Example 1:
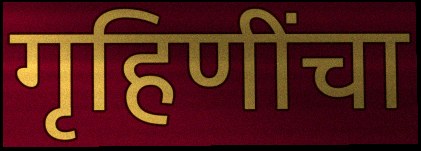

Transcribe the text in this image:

गृहिणींचा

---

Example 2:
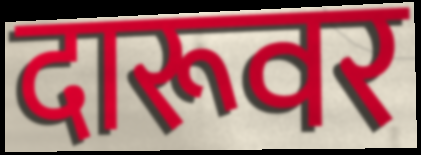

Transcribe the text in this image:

दारूवर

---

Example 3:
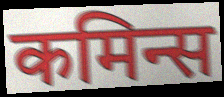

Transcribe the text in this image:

कमिन्स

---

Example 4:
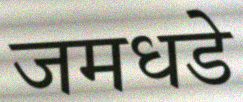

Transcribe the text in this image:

जमधडे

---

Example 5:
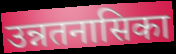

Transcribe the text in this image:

उन्नतनासिका